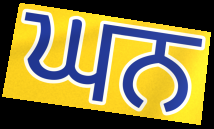
ਘਨ